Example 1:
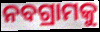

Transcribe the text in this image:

ନବଗ୍ରାମକୁ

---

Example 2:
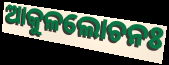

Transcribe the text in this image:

ଆକୁଳଲୋଚନଃ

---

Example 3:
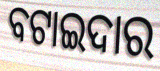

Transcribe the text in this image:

ବଟାଇଦାର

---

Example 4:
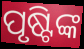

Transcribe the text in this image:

ପୃଷ୍ଟିଙ୍କ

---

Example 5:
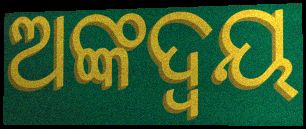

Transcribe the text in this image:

ଅଙ୍କଦ୍ବୟ